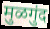
मुळगुंद